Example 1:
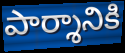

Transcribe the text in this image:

పార్శానికి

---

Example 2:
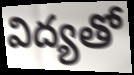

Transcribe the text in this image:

విద్యతో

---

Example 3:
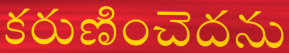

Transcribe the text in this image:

కరుణించెదను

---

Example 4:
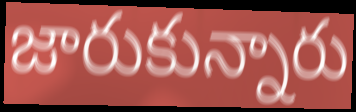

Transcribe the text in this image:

జారుకున్నారు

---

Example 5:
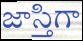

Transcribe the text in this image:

జాస్తిగా